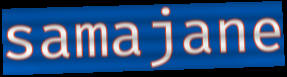
samajane